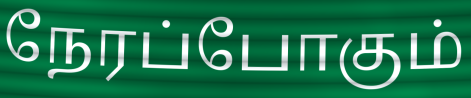
நேரப்போகும்